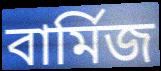
বাৰ্মিজ